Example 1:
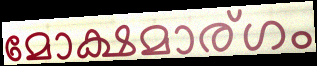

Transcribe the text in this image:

മോക്ഷമാര്ഗം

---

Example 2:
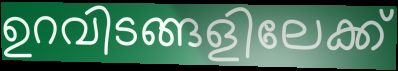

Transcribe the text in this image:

ഉറവിടങ്ങളിലേക്ക്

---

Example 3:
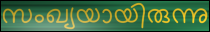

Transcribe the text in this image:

സംഖ്യയായിരുന്നു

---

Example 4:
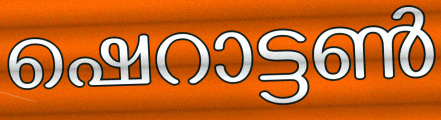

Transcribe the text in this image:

ഷെറാട്ടൺ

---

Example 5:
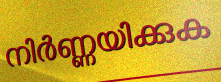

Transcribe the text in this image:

നിർണ്ണയിക്കുക